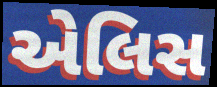
એલિસ